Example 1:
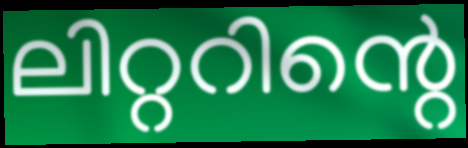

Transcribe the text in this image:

ലിറ്ററിന്റെ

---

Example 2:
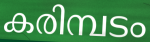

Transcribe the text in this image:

കരിമ്പടം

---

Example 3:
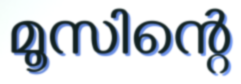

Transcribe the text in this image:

മൂസിന്റെ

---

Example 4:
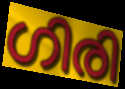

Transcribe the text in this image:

ഗിരി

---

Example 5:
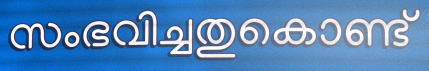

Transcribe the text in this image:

സംഭവിച്ചതുകൊണ്ട്